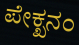
ಪೇಕ್ಖನಂ